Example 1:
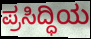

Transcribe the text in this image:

ಪ್ರಸಿದ್ಧಿಯ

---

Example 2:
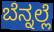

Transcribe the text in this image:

ಬೆನ್ನಲ್ಲೆ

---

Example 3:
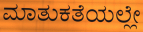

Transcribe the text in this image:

ಮಾತುಕತೆಯಲ್ಲೇ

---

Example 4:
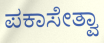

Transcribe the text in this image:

ಪಕಾಸೇತ್ವಾ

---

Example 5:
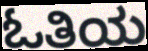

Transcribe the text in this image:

ಓತಿಯ